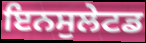
ਇਨਸੁਲੇਟਡ